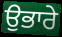
ਉਭਾਰੇ